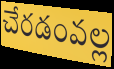
చేరడంవల్ల